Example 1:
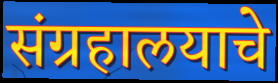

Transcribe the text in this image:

संग्रहालयाचे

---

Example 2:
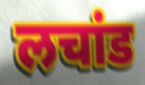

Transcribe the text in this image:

लचांड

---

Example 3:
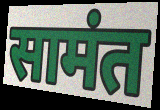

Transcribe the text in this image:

सामंत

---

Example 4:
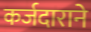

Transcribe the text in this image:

कर्जदाराने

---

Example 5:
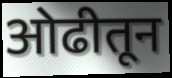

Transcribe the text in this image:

ओढीतून